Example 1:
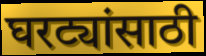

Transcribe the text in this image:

घरट्यांसाठी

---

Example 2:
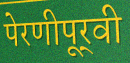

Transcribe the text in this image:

पेरणीपूर्वी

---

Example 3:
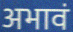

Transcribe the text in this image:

अभावं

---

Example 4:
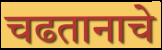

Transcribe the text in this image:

चढतानाचे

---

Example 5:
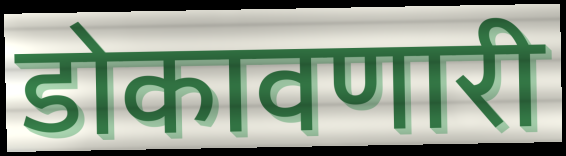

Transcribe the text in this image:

डोकावणारी